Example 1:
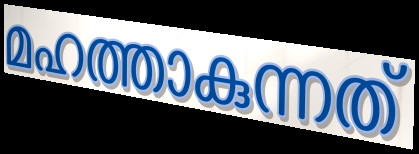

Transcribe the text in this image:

മഹത്താകുന്നത്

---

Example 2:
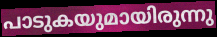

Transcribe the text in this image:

പാടുകയുമായിരുന്നു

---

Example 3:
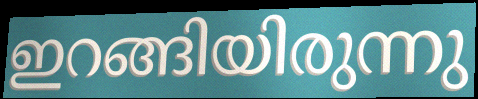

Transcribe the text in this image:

ഇറങ്ങിയിരുന്നു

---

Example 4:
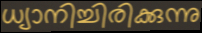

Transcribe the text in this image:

ധ്യാനിച്ചിരിക്കുന്നു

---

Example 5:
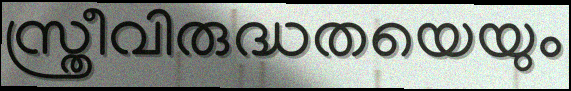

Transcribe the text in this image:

സ്ത്രീവിരുദ്ധതയെയും